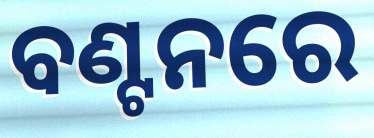
ବଣ୍ଟନରେ